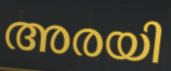
അരയി